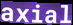
axial